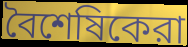
বৈশেষিকেরা